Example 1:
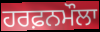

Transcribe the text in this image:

ਹਰਫ਼ਨਮੌਲਾ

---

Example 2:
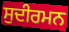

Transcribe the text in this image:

ਸੁਦੀਰਮਨ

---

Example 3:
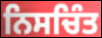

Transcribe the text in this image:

ਨਿਸਚਿੰਤ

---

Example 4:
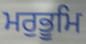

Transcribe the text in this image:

ਮਰੁਭੂਮਿ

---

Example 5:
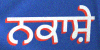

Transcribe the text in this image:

ਨਕਾਸ਼ੇ